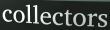
collectors